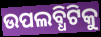
ଉପଲବ୍ଧିଟିକୁ